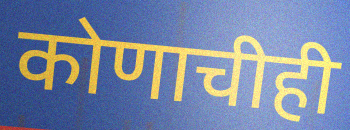
कोणाचीही